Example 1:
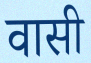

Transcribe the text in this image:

वासी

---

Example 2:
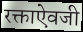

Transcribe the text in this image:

रक्ताऐवजी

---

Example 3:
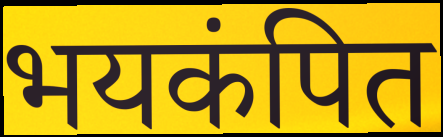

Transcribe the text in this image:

भयकंपित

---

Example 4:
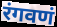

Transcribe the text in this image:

रंगवणं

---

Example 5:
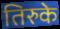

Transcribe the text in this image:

तिरुके